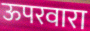
ऊपरवारा